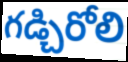
గడ్చిరోలి